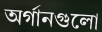
অর্গানগুলো